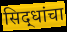
सिद्धांचा